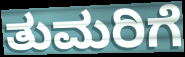
ತುಮರಿಗೆ